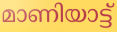
മാണിയാട്ട്